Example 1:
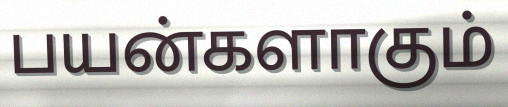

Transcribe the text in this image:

பயன்களாகும்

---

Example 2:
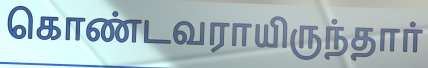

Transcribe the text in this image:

கொண்டவராயிருந்தார்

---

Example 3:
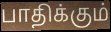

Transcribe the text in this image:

பாதிக்கும்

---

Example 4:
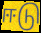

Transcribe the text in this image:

ஈடு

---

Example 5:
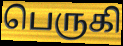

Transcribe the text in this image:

பெருகி